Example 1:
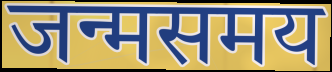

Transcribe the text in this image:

जन्मसमय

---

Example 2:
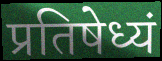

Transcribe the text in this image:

प्रतिषेध्यं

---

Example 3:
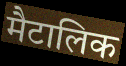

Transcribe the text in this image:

मैटालिक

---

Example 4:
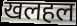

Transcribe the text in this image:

खलहल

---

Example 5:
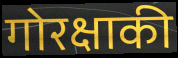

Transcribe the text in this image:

गोरक्षाकी